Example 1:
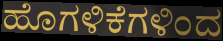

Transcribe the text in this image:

ಹೊಗಳಿಕೆಗಳಿಂದ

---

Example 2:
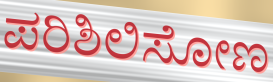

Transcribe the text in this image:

ಪರಿಶಿಲಿಸೋಣ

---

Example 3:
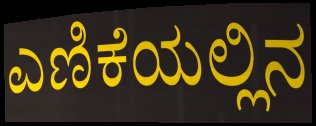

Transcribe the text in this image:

ಎಣಿಕೆಯಲ್ಲಿನ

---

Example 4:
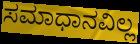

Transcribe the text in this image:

ಸಮಾಧಾನವಿಲ್ಲ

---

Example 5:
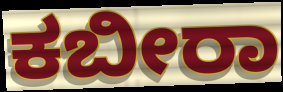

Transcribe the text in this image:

ಕಬೀರಾ